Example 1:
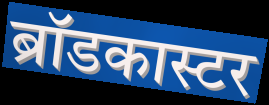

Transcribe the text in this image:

ब्रॉडकास्टर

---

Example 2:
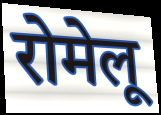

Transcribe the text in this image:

रोमेलू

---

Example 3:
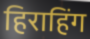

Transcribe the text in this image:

हिराहिंग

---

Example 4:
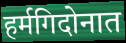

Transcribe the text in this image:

हर्मगिदोनात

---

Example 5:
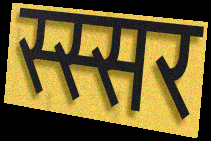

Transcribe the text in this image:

स्स्सर